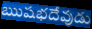
ఋషభదేవుడు